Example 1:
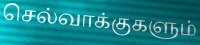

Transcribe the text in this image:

செல்வாக்குகளும்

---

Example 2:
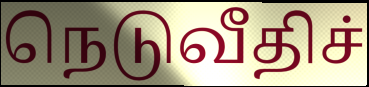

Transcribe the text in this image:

நெடுவீதிச்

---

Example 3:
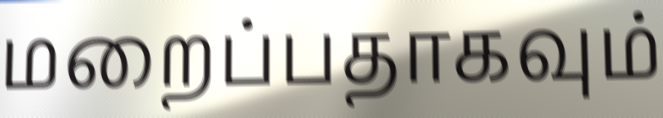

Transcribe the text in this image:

மறைப்பதாகவும்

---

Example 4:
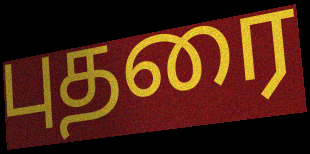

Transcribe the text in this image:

புதரை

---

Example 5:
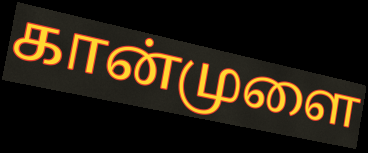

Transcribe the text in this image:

கான்முளை